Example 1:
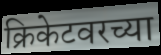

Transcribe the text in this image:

क्रिकेटवरच्या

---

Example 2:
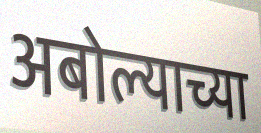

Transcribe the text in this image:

अबोल्याच्या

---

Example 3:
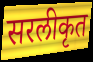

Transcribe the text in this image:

सरलीकृत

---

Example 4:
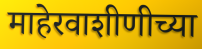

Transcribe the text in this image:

माहेरवाशीणीच्या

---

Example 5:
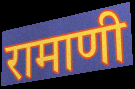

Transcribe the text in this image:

रामाणी